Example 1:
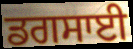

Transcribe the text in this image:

ਡਗਸਾਈ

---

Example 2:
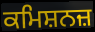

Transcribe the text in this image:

ਕਮਿਸ਼ਨਜ਼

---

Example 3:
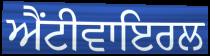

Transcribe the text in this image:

ਐਂਟੀਵਾਇਰਲ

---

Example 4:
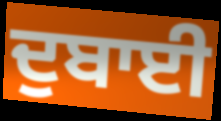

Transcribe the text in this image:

ਦੁਬਾਈ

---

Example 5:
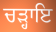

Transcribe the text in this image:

ਚੜ੍ਹਾਇ